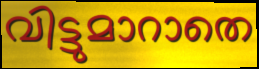
വിട്ടുമാറാതെ